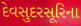
દેવસુદરસૂરિના